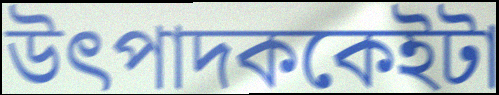
উৎপাদককেইটা